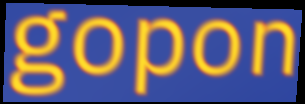
gopon